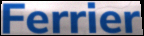
Ferrier